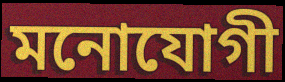
মনোযোগী